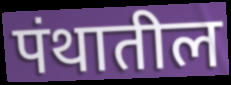
पंथातील